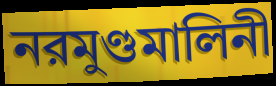
নরমুণ্ডমালিনী